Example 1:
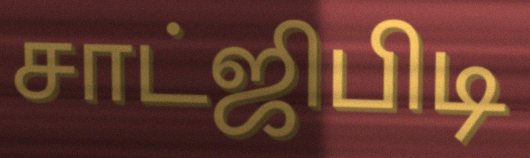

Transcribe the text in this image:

சாட்ஜிபிடி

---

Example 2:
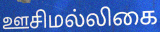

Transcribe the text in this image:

ஊசிமல்லிகை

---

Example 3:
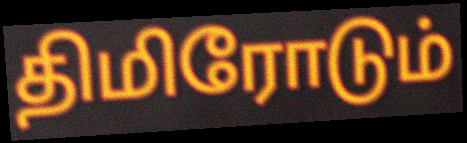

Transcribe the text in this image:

திமிரோடும்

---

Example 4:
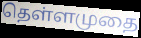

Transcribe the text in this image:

தெள்ளமுதை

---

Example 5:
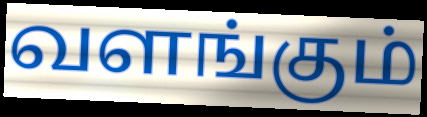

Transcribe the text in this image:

வளங்கும்